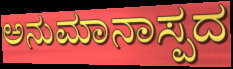
ಅನುಮಾನಾಸ್ಪದ